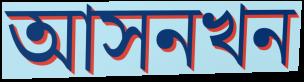
আসনখন